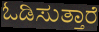
ಓಡಿಸುತ್ತಾರೆ